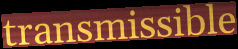
transmissible